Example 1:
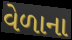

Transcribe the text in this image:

વેળાના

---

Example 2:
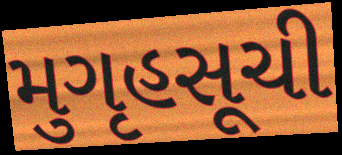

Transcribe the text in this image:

મુગૃહસૂચી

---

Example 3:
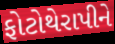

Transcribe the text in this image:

ફોટોથેરાપીને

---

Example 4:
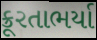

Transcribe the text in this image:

ક્રૂરતાભર્યા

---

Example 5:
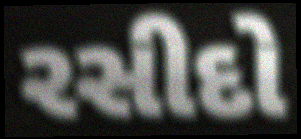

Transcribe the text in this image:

રસીદો